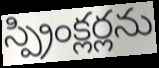
స్ప్రింక్లర్లను